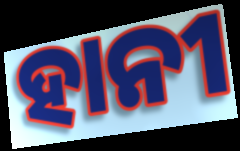
ହାନୀ